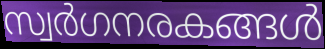
സ്വർഗനരകങ്ങൾ